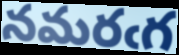
నమరఁగ